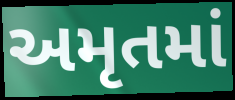
અમૃતમાં